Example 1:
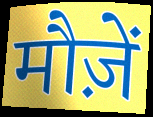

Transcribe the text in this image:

मौज़ें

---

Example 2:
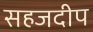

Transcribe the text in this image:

सहजदीप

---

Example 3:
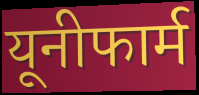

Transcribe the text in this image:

यूनीफार्म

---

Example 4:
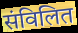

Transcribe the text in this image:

संविलित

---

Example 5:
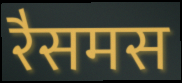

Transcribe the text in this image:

रैसमस